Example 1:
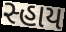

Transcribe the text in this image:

સ્હાય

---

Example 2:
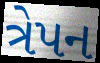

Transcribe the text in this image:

ત્રેપન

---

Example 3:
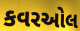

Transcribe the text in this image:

કવરઓલ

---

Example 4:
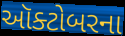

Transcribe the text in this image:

ઑક્ટોબરના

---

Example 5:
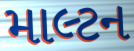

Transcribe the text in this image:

માલ્ટન